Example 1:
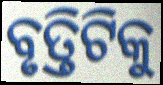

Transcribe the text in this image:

ବୃତ୍ତିଟିକୁ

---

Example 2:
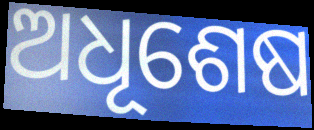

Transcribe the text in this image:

ଅଧୂଶେଷ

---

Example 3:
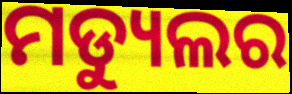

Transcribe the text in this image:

ମଡ୍ୟୁଲର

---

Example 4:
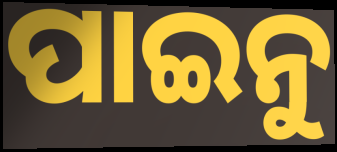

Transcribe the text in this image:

ପାଇନୁ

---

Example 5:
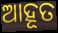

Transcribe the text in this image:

ଆହୂତ